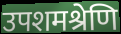
उपशमश्रेणि